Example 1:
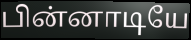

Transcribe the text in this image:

பின்னாடியே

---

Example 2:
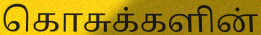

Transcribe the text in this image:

கொசுக்களின்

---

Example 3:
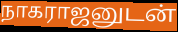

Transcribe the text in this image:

நாகராஜனுடன்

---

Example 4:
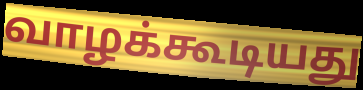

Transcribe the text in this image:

வாழக்கூடியது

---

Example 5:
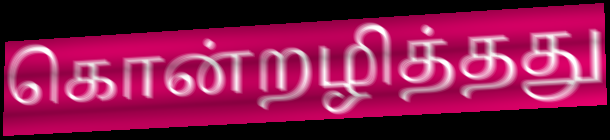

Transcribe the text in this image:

கொன்றழித்தது